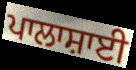
ਪਾਲਾਸ਼ਾਈ